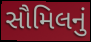
સૌમિલનું